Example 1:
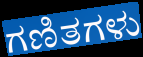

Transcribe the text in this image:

ಗಣಿತಗಳು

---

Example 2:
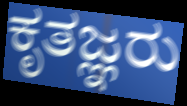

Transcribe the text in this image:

ಕೃತಜ್ಞರು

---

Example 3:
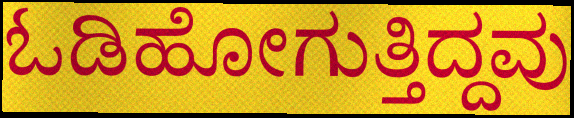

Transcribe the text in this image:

ಓಡಿಹೋಗುತ್ತಿದ್ದವು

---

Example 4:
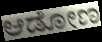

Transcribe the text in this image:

ಆಡೋಣ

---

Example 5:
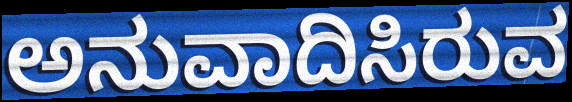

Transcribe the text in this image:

ಅನುವಾದಿಸಿರುವ